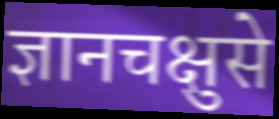
ज्ञानचक्षुसे